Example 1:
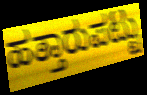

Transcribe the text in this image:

ಹತ್ತಾರುಪಟ್ಟು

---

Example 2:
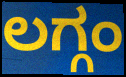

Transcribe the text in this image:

ಲಗ್ಗಂ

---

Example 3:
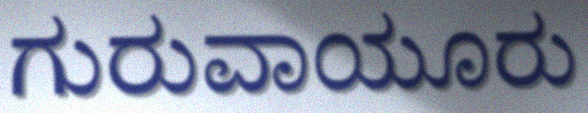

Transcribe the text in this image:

ಗುರುವಾಯೂರು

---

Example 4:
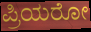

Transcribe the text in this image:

ಪ್ರಿಯರೋ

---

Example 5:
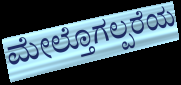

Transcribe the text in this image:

ಮೇಲ್ತೊಗಲ್ಪರೆಯ